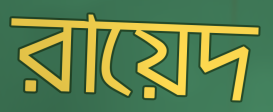
রায়েদ